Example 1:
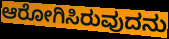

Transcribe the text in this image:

ಆರೋಗಿಸಿರುವುದನು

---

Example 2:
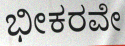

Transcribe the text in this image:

ಭೀಕರವೇ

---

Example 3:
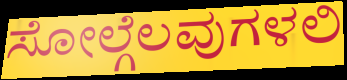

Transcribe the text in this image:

ಸೋಲ್ಗೆಲವುಗಳಲಿ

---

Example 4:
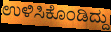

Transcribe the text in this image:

ಉಳಿಸಿಕೊಂಡಿದ್ದು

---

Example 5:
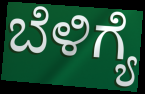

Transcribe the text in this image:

ಬೆಳಿಗ್ಯೆ